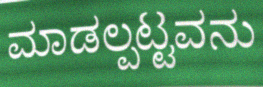
ಮಾಡಲ್ಪಟ್ಟವನು